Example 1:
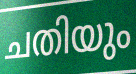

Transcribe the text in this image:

ചതിയും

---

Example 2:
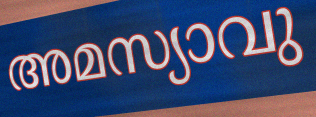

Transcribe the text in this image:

അമസ്യാവു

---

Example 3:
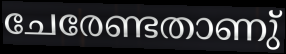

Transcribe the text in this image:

ചേരേണ്ടതാണു്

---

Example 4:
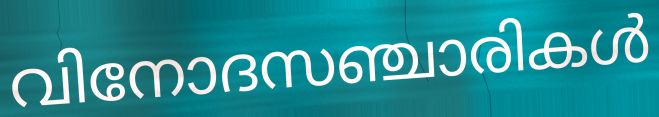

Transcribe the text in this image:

വിനോദസഞ്ചാരികൾ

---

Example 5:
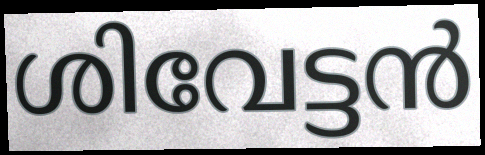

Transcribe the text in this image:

ശിവേട്ടൻ